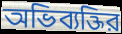
অভিব্যক্তির